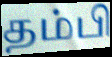
தம்பி